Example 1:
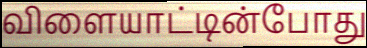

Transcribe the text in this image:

விளையாட்டின்போது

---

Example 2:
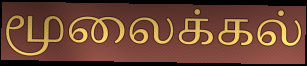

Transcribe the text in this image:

மூலைக்கல்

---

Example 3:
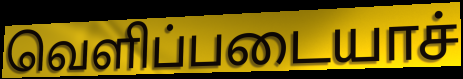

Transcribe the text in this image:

வெளிப்படையாச்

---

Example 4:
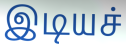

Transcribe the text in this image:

இடியச்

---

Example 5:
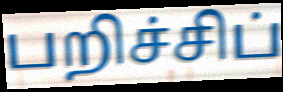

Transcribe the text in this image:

பறிச்சிப்